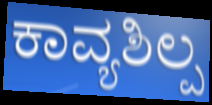
ಕಾವ್ಯಶಿಲ್ಪ